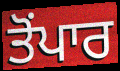
ਤੋਂਪਾਰ